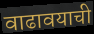
वाढावयाची